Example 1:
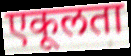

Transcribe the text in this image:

एकूलता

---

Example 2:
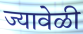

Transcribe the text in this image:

ज्यावेळी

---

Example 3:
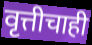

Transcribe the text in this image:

वृत्तीचाही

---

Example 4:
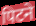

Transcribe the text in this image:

पिटने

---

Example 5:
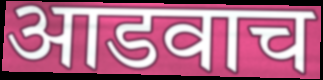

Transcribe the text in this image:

आडवाच